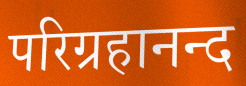
परिग्रहानन्द